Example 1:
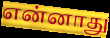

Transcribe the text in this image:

என்னாது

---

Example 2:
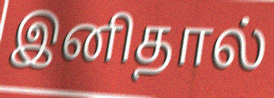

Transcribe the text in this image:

இனிதால்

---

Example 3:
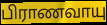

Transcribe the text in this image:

பிராணவாயு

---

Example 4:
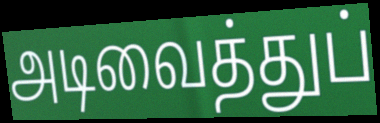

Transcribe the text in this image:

அடிவைத்துப்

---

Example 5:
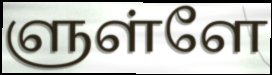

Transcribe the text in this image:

ளுள்ளே